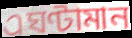
এঘণ্টামান